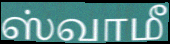
ஸ்வாமீ